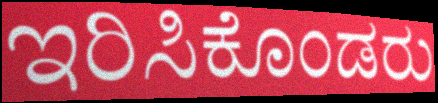
ಇರಿಸಿಕೊಂಡರು